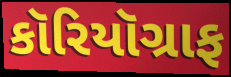
કૉરિયૉગ્રાફ